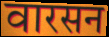
वारसन